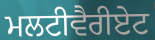
ਮਲਟੀਵੈਰੀਏਟ